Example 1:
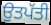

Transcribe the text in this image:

ਉਤਪੱਤੀ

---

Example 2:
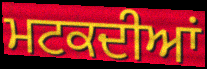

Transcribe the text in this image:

ਮਟਕਦੀਆਂ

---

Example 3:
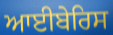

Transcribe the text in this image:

ਆਈਬੇਰਿਸ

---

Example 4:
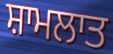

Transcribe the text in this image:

ਸ਼ਾਮਲਾਤ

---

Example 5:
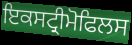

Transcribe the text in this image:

ਇਕਸਟ੍ਰੀਮੋਫਿਲਸ